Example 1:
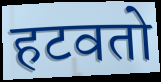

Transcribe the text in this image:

हटवतो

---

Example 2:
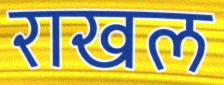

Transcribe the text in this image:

राखल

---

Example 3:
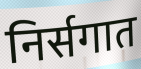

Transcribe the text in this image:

निर्सगात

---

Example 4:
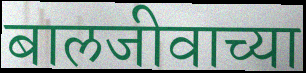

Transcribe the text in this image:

बालजीवाच्या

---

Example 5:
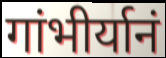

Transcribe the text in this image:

गांभीर्यानं